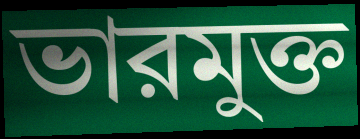
ভারমুক্ত